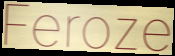
Feroze